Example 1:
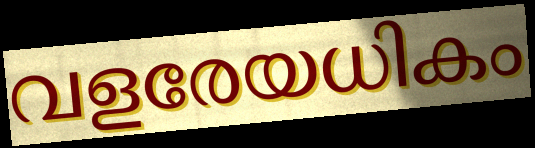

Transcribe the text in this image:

വളരേയധികം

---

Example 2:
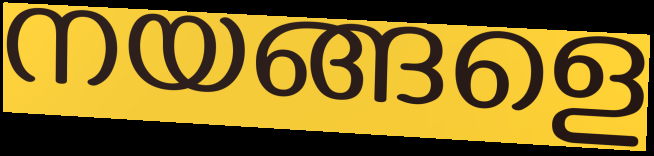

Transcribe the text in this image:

നയങ്ങളെ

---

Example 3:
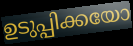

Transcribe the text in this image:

ഉടുപ്പിക്കയോ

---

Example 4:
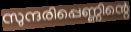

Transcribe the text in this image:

സുന്ദരിപ്പെണ്ണിന്റെ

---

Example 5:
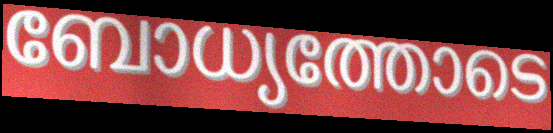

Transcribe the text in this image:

ബോധ്യത്തോടെ